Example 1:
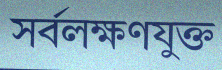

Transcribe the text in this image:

সর্বলক্ষণযুক্ত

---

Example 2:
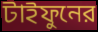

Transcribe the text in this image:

টাইফুনের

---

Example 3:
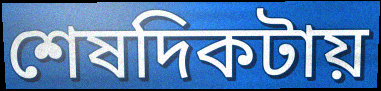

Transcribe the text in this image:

শেষদিকটায়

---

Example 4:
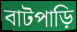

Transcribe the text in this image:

বাটপাড়ি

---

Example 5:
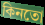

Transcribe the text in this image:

কিনতো